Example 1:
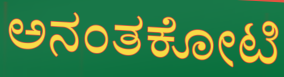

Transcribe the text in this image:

ಅನಂತಕೋಟಿ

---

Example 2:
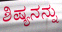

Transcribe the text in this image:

ಶಿಷ್ಯನನ್ನು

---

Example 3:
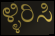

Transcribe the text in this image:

ಳ್ಳಿರಿಸಿ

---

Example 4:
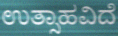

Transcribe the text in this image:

ಉತ್ಸಾಹವಿದೆ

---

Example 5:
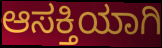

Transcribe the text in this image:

ಆಸಕ್ತಿಯಾಗಿ